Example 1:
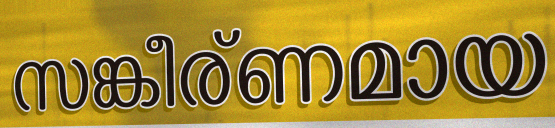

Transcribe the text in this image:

സങ്കീര്ണമായ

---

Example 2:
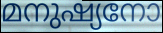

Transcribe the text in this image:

മനുഷ്യനോ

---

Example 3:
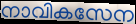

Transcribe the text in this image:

നാവികസേന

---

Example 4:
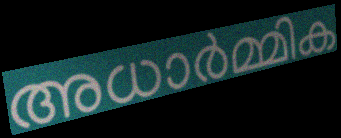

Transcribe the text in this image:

അധാർമ്മിക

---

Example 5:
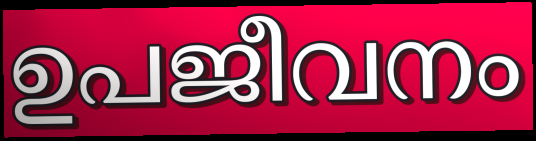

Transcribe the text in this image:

ഉപജീവനം